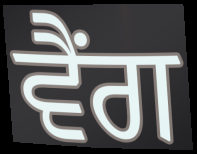
ਵੈਂਗ